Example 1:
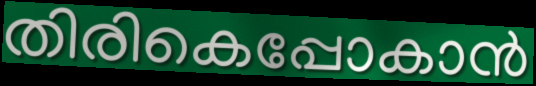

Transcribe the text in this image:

തിരികെപ്പോകാൻ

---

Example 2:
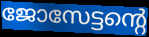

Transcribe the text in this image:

ജോസേട്ടന്റെ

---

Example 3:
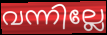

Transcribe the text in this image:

വന്നില്ലേ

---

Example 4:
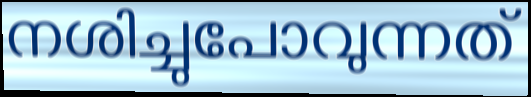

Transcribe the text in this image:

നശിച്ചുപോവുന്നത്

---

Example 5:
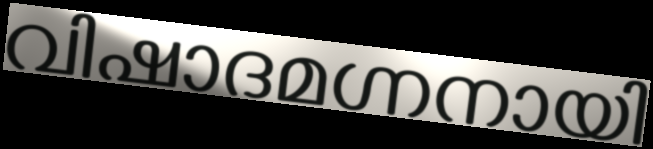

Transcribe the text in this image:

വിഷാദമഗ്നനായി